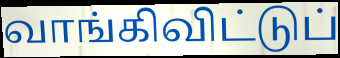
வாங்கிவிட்டுப்